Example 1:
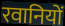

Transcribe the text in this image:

रवानियों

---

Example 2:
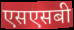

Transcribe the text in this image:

एसएसबी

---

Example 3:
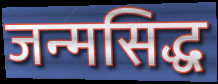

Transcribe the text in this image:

जन्मसिद्ध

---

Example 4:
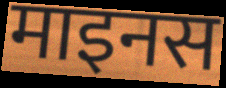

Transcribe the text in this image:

माइनस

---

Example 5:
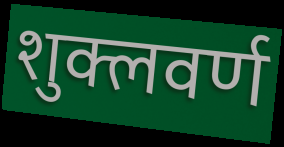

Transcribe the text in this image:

शुक्लवर्ण